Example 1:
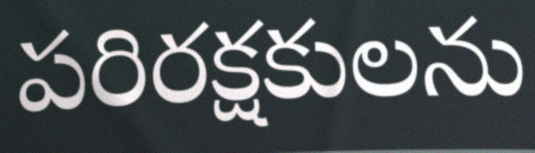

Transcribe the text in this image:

పరిరక్షకులను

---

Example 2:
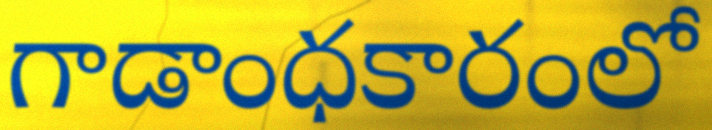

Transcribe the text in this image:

గాడాంధకారంలో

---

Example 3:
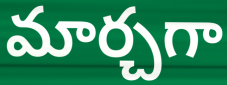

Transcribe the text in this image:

మార్చగా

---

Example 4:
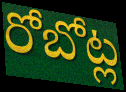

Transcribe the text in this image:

రోబోట్ల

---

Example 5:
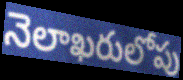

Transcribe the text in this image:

నెలాఖరులోపు